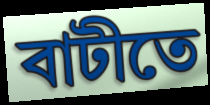
বাটীতে